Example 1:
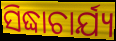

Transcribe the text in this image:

ସିଦ୍ଧାଚାର୍ଯ୍ୟ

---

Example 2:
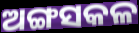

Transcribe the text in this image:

ଅଙ୍ଗସକଳ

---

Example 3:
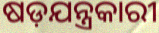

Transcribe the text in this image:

ଷଡ଼ଯନ୍ତ୍ରକାରୀ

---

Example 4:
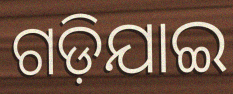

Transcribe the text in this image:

ଗଡ଼ିଯାଇ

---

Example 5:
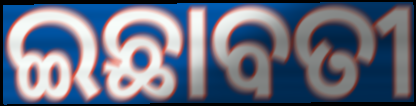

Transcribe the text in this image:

ଇଛାବତୀ